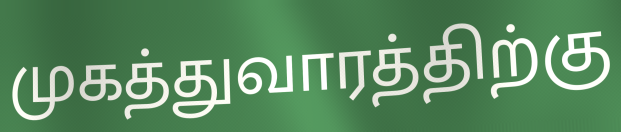
முகத்துவாரத்திற்கு